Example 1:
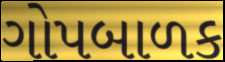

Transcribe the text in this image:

ગોપબાળક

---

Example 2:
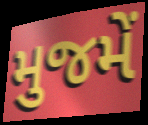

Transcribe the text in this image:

મુજમેં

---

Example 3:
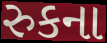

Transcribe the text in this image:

રુકના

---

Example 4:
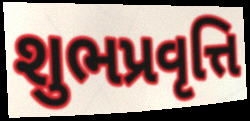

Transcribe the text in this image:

શુભપ્રવૃત્તિ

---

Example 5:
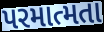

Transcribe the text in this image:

પરમાત્મતા